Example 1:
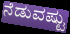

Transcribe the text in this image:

ನೆಡುವಷ್ಟು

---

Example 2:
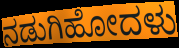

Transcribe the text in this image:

ನಡುಗಿಹೋದಳು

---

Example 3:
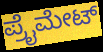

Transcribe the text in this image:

ಪ್ರೈಮೇಟ್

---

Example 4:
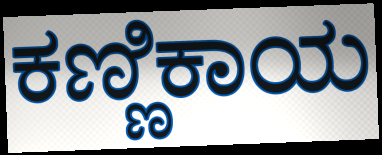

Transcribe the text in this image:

ಕಣ್ಣಿಕಾಯ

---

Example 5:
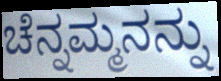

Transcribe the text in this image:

ಚೆನ್ನಮ್ಮನನ್ನು